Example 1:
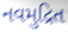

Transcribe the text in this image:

નવમુદ્રિત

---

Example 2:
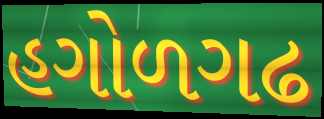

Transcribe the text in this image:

હગોળગઢ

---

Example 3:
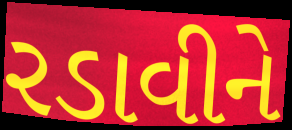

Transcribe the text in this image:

રડાવીને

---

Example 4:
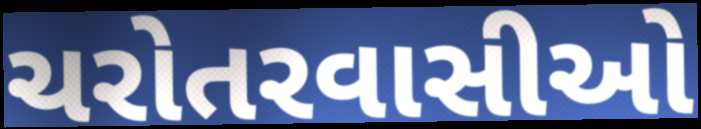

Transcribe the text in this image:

ચરોતરવાસીઓ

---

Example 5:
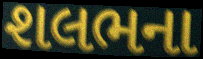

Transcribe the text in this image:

શલભના